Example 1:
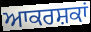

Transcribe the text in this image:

ਆਕਰਸ਼ਕਾਂ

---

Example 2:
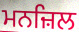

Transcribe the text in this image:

ਮਨਜ਼ਿਲ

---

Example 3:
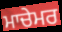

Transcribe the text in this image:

ਮਾਚੇਮਰ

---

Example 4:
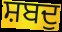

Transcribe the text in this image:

ਸ਼ਬਦੁ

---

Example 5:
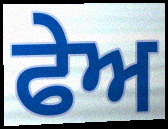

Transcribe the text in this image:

ਫੇਅ